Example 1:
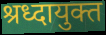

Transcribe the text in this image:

श्रध्दायुक्त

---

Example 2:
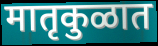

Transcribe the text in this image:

मातृकुळात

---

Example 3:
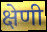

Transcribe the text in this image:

क्षेणी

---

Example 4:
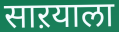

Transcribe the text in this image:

साऱयाला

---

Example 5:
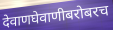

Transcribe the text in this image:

देवाणघेवाणीबरोबरच